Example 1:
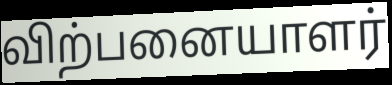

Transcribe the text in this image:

விற்பனையாளர்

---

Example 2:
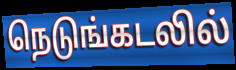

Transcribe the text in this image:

நெடுங்கடலில்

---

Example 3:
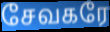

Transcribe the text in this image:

சேவகரே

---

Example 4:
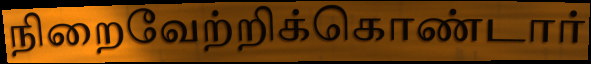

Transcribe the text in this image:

நிறைவேற்றிக்கொண்டார்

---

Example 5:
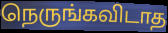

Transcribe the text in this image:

நெருங்கவிடாத